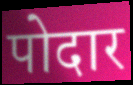
पोदार